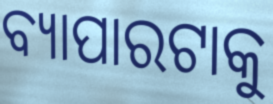
ବ୍ୟାପାରଟାକୁ